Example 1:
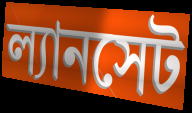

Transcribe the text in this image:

ল্যানসেট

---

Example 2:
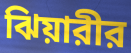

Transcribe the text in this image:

ঝিয়ারীর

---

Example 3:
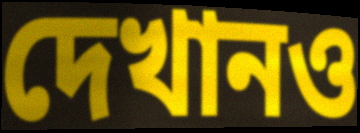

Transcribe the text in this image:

দেখানও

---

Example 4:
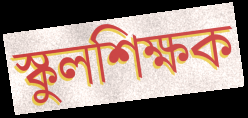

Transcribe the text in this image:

স্কুলশিক্ষক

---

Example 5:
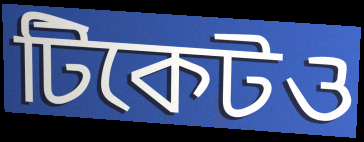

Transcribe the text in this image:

টিকেটও